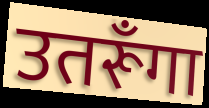
उतरूँगा